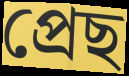
প্ৰেছ